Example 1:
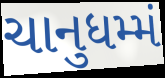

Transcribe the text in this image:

ચાનુધમ્મં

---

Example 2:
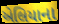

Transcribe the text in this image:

એલિયાના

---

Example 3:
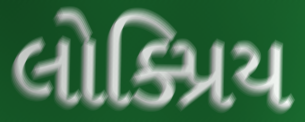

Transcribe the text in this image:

લોક્પ્રિય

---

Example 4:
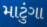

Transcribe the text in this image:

માટુંગા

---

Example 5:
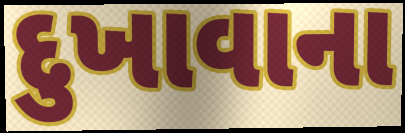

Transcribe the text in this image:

દુખાવાના